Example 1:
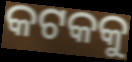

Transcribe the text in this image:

କଟକକୁ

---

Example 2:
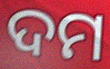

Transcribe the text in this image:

ଦମ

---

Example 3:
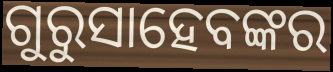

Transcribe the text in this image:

ଗୁରୁସାହେବଙ୍କର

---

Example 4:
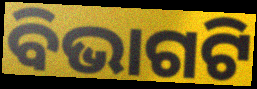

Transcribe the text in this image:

ବିଭାଗଟି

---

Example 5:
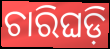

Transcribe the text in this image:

ଚାରିଘଡ଼ି